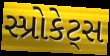
સ્પ્રોકેટ્સ